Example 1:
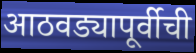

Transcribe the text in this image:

आठवड्यापूर्वीची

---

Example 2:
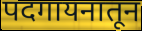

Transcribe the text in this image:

पदगायनातून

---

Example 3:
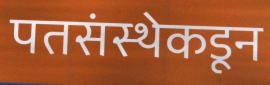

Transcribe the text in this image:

पतसंस्थेकडून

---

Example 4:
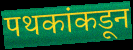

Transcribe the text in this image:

पथकांकडून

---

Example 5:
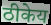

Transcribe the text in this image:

ठीकेय